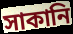
সাকানি